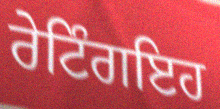
ਰੇਟਿੰਗਇਹ